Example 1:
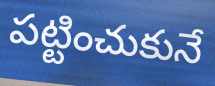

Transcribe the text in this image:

పట్టించుకునే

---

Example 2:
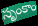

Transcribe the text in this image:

సృంకాం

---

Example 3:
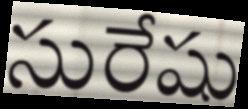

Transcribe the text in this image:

సురేషు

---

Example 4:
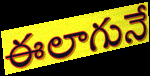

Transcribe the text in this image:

ఈలాగునే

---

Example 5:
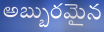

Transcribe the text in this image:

అబ్బురమైన